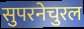
सुपरनेचुरल